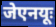
जेएनयूः